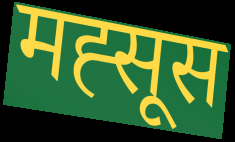
मह्सूस